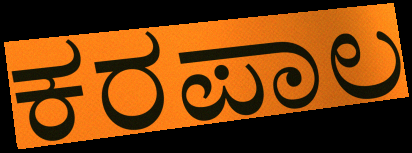
ಕರಪಾಲ